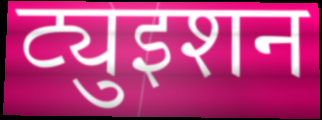
ट्युइशन